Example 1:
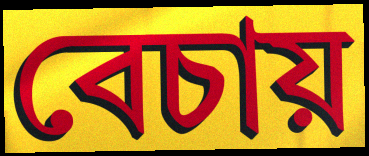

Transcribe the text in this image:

বেচায়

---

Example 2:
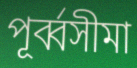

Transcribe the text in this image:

পূর্ব্বসীমা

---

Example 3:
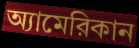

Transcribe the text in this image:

অ্যামেরিকান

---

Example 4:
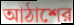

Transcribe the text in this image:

আঠাশের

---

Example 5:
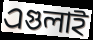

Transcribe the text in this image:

এগুলাই